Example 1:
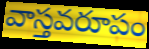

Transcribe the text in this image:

వాస్తవరూపం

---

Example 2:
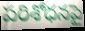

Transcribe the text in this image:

పరిశోధనపై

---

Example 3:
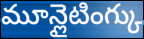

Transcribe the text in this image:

మూన్లైటింగ్కు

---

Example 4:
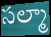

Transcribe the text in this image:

సల్మా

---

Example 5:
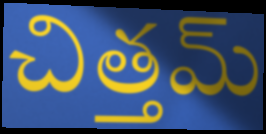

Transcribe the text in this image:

చిత్తమ్